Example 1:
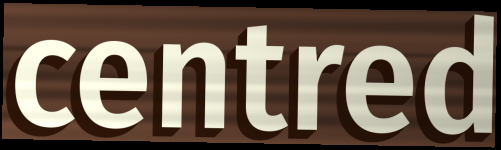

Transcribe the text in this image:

centred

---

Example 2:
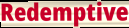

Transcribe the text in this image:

Redemptive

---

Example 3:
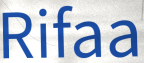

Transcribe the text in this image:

Rifaa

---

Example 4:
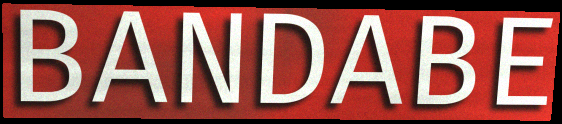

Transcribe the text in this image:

BANDABE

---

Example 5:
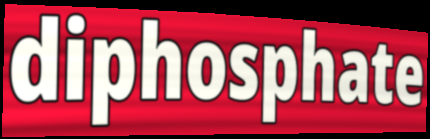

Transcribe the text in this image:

diphosphate